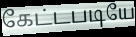
கேட்டபடியே